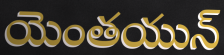
యెంతయున్